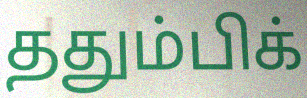
ததும்பிக்